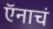
ऍनाचं